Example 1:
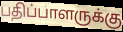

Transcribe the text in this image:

பதிப்பாளருக்கு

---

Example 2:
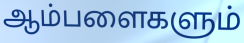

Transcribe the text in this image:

ஆம்பளைகளும்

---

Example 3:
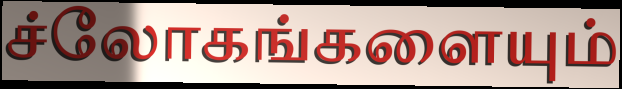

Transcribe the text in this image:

ச்லோகங்களையும்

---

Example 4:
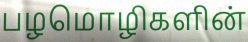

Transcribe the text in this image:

பழமொழிகளின்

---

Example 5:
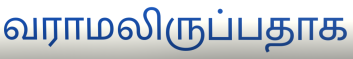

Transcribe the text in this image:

வராமலிருப்பதாக